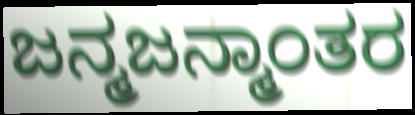
ಜನ್ಮಜನ್ಮಾಂತರ